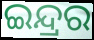
ଇନ୍ଦ୍ରର